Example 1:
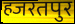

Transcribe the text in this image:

हजरतपुर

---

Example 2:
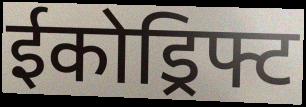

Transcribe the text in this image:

ईकोड्रिफ्ट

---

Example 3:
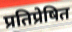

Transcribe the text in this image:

प्रतिप्रेषित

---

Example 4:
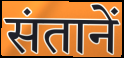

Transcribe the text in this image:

संतानें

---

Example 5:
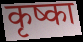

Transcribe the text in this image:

कृष्का